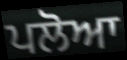
ਪਲੋਆ